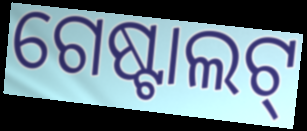
ଗେଷ୍ଟାଲଟ୍